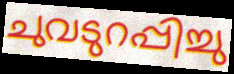
ചുവടുറപ്പിച്ചു